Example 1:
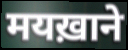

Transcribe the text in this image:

मयख़ाने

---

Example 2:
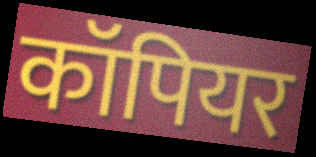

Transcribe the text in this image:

कॉपियर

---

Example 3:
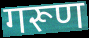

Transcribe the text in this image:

गरूण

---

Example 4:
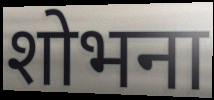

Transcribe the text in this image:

शोभना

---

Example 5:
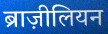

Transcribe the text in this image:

ब्राज़ीलियन